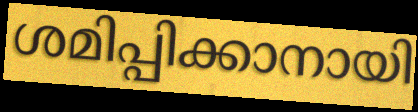
ശമിപ്പിക്കാനായി